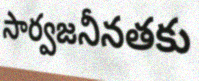
సార్వజనీనతకు